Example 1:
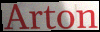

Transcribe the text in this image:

Arton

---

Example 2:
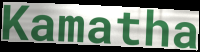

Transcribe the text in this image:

Kamatha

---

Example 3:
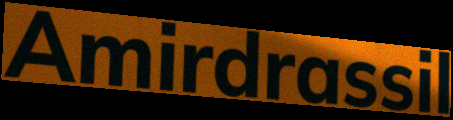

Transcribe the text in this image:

Amirdrassil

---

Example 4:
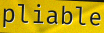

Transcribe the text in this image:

pliable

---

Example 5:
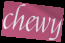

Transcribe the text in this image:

chewy